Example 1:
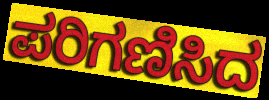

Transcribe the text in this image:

ಪರಿಗಣಿಸಿದ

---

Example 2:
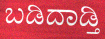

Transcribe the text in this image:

ಬಡಿದಾಡ್ತಿ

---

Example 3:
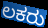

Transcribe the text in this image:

ಲಕರು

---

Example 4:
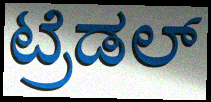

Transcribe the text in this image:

ಟ್ರೆಡಲ್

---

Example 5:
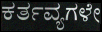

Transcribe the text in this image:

ಕರ್ತವ್ಯಗಳೇ